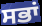
ਸਭਾਂ